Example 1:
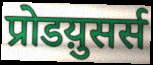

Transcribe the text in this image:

प्रोडय़ुसर्स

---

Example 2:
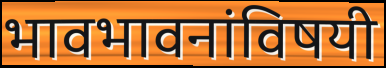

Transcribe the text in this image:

भावभावनांविषयी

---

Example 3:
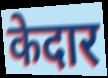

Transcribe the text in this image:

केदार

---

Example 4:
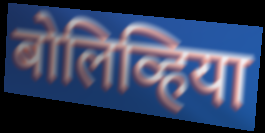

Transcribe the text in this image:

बोलिव्हिया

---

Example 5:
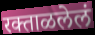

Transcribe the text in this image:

रक्ताळलेलं